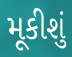
મૂકીશું